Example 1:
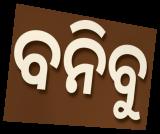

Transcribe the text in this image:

ବନିବୁ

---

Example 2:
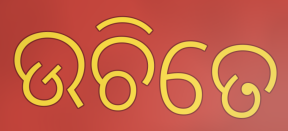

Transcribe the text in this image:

ଉଚିତେ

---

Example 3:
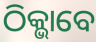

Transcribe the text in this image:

ଠିକ୍ଭାବେ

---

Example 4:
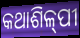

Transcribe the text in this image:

କଥାଶିଳ୍‌ପୀ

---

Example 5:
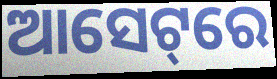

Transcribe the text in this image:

ଆସେଟ୍‌ରେ